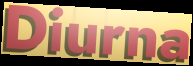
Diurna